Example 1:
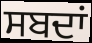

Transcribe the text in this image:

ਸਬਦਾਂ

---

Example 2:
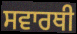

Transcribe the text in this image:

ਸਵਾਰਥੀ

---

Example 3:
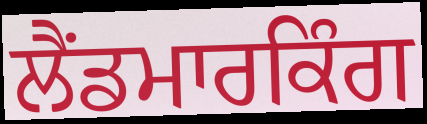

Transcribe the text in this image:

ਲੈਂਡਮਾਰਕਿੰਗ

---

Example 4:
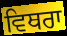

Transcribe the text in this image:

ਵਿਥਰਾ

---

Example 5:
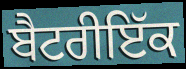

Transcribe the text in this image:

ਬੈਟਰੀਇੱਕ